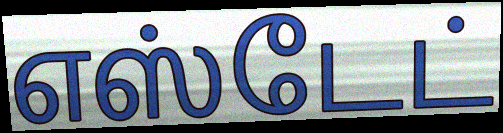
எஸ்டேட்